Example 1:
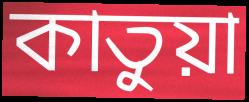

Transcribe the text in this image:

কাতুয়া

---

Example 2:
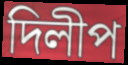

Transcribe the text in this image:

দিলীপ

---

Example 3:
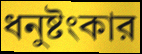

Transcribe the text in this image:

ধনুষ্টংকার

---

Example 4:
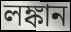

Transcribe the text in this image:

লঙ্কান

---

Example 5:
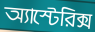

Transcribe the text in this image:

অ্যাস্টেরিক্স